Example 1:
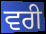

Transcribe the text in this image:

ਵਰੀ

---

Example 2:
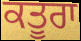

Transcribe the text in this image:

ਕਤੂਰਾ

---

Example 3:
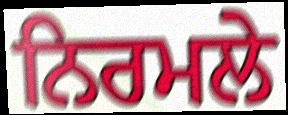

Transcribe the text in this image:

ਨਿਰਮਲੇ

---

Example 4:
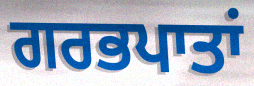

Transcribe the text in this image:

ਗਰਭਪਾਤਾਂ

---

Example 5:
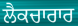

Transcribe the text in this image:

ਲੈਕਚਾਰਾਰ